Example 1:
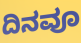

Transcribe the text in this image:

ದಿನವೂ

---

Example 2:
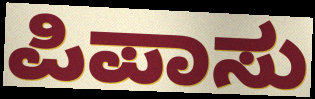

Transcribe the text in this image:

ಪಿಪಾಸು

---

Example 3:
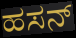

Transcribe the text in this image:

ಹಸನ್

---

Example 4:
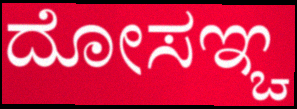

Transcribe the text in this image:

ದೋಸಞ್ಚ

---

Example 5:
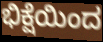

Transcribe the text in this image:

ಭಿಕ್ಷೆಯಿಂದ